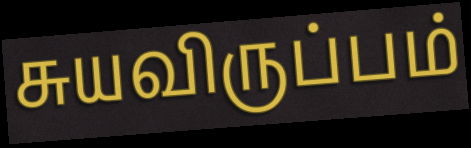
சுயவிருப்பம்